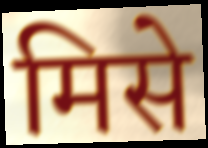
मिसे